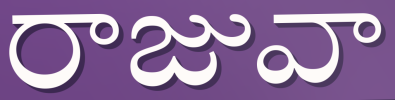
రాజువా